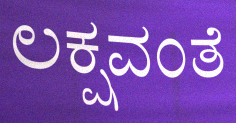
ಲಕ್ಷವಂತೆ